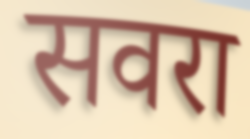
सवरा